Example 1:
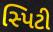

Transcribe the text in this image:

સ્પિટી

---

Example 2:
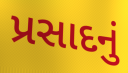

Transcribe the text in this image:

પ્રસાદનું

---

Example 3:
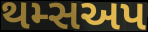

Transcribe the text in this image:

થમ્સઅપ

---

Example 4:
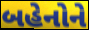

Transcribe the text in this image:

બહેનોને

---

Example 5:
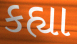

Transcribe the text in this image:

કહ્યા